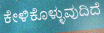
ಕೇಳಿಕೊಳ್ಳುವುದಿದೆ